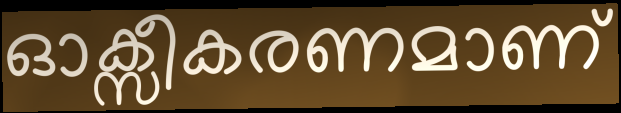
ഓക്സീകരണമാണ്